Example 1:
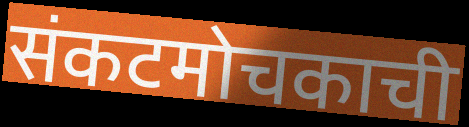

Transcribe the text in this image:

संकटमोचकाची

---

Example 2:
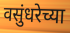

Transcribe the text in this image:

वसुंधरेच्या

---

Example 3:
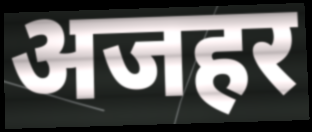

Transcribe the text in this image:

अजहर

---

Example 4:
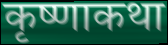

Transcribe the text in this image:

कृष्णाकथा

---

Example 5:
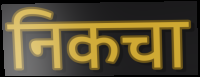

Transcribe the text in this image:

निकचा